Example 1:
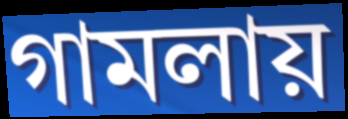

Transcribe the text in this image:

গামলায়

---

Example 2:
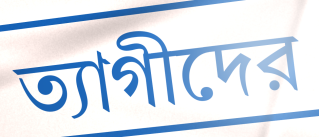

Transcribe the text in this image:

ত্যাগীদের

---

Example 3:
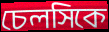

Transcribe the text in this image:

চেলসিকে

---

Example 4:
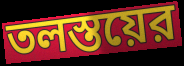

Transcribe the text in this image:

তলস্তয়ের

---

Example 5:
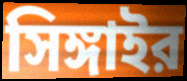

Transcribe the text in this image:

সিঙ্গাইর